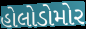
હોલોડોમોર